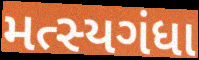
મત્સ્યગંધા